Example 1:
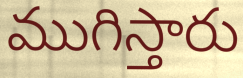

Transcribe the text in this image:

ముగిస్తారు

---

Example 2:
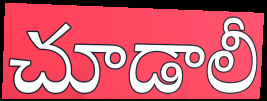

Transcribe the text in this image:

చూడాలీ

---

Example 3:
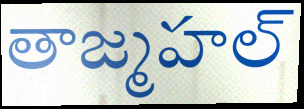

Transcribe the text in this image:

తాజ్మహల్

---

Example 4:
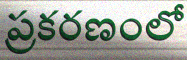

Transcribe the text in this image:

ప్రకరణంలో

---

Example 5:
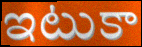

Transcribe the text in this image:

ఇటుకా